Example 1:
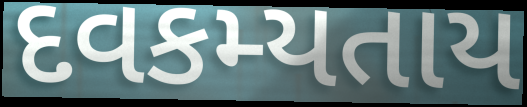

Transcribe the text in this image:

દવકમ્યતાય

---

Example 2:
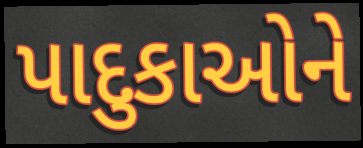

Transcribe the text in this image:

પાદુકાઓને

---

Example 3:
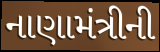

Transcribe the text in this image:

નાણામંત્રીની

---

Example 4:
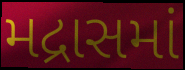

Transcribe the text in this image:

મદ્રાસમાં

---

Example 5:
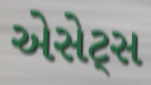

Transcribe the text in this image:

એસેટ્સ